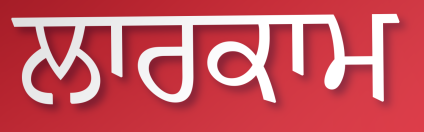
ਲਾਰਕਾਮ